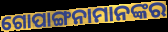
ଗୋପାଙ୍ଗନାମାନଙ୍କର